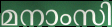
മനാംസി